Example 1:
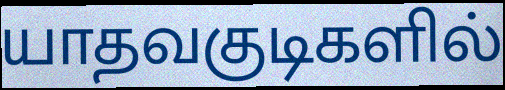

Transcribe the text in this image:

யாதவகுடிகளில்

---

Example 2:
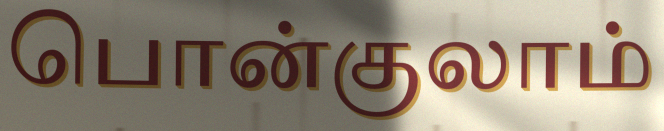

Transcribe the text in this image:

பொன்குலாம்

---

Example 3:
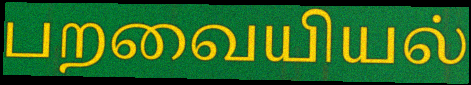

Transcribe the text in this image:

பறவையியல்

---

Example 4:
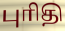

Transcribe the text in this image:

புரிதி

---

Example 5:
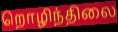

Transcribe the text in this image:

றொழிந்திலை